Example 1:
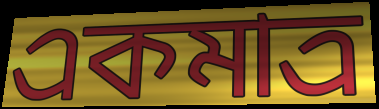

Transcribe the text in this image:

একমাত্ৰ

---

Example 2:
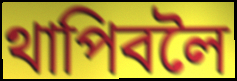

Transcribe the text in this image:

থাপিবলৈ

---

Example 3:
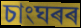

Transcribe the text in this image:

চাংঘৰৰ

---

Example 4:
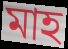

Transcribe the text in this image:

মাহ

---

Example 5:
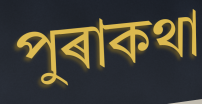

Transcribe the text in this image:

পুৰাকথা